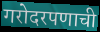
गरोदरपणाची